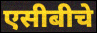
एसीबीचे